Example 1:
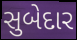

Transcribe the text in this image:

સુબેદાર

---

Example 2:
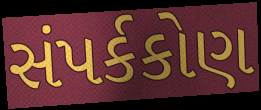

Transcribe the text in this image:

સંપર્કકોણ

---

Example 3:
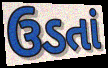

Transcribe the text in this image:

ઉડતાં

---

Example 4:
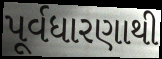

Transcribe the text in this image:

પૂર્વધારણાથી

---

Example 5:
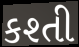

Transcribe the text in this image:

કશ્તી